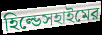
হিল্ডেসহাইমের